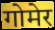
गोमेर